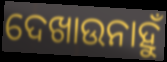
ଦେଖାଉନାହୁଁ